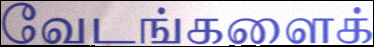
வேடங்களைக்